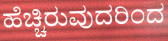
ಹೆಚ್ಚಿರುವುದರಿಂದ